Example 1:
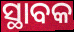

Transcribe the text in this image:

ସ୍ଥାବକ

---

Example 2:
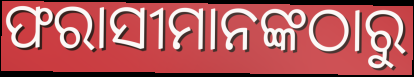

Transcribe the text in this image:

ଫରାସୀମାନଙ୍କଠାରୁ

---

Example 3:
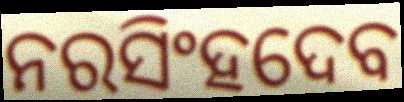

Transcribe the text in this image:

ନରସିଂହଦେବ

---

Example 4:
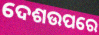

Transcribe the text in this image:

ଦେଶଉପରେ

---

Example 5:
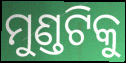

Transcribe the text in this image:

ମୁଣ୍ଡଟିକୁ